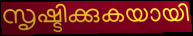
സൃഷ്ടിക്കുകയായി